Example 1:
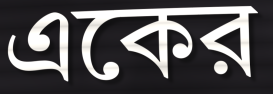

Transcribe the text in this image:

একের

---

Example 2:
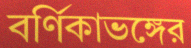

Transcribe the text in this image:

বর্ণিকাভঙ্গের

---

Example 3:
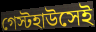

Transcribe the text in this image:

গেস্টহাউসেই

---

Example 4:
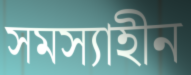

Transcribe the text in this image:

সমস্যাহীন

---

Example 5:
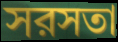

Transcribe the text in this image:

সরসতা